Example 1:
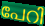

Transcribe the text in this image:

പേറി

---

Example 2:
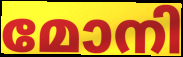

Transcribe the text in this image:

മോനി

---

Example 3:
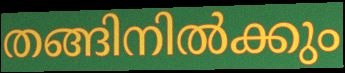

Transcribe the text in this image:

തങ്ങിനിൽക്കും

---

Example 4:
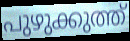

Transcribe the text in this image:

പുഴുക്കുത്ത്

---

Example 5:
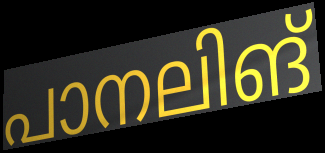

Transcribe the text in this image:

പാനലിങ്